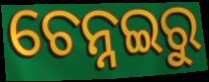
ଚେନ୍ନଇରୁ